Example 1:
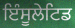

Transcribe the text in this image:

ਇੰਸੂਲੇਟਿਡ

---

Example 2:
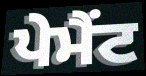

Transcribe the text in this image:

ਪੇਮੈਂਟ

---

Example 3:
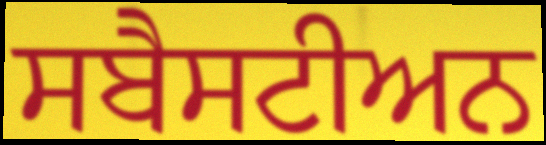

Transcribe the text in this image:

ਸਬੈਸਟੀਅਨ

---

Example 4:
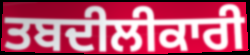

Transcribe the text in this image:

ਤਬਦੀਲੀਕਾਰੀ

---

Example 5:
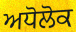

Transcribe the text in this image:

ਅਧੋਲੋਕ